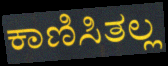
ಕಾಣಿಸಿತಲ್ಲ